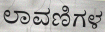
ಲಾವಣಿಗಳ